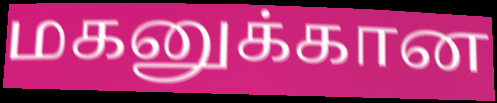
மகனுக்கான